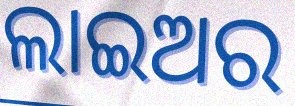
ଲାଇଅର